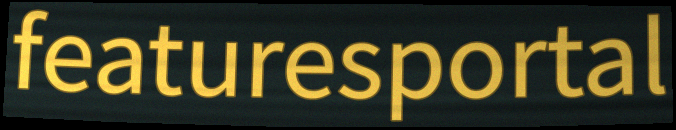
featuresportal